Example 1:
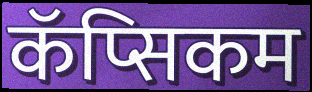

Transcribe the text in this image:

कॅप्सिकम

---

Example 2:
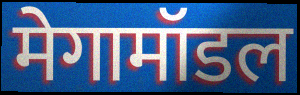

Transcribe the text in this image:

मेगामॉडल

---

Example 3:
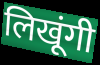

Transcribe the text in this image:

लिखूंगी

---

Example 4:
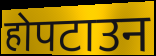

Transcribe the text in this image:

होपटाउन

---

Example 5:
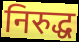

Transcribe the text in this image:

निरुद्ध